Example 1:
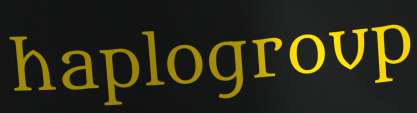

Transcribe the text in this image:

haplogroup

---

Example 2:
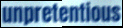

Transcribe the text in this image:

unpretentious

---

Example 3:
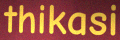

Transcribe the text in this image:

thikasi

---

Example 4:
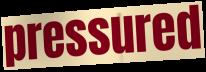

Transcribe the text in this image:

pressured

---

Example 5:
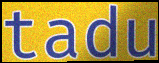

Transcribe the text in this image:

tadu